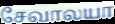
சேவாலயா